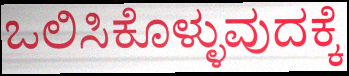
ಒಲಿಸಿಕೊಳ್ಳುವುದಕ್ಕೆ